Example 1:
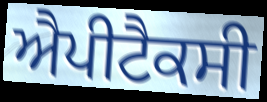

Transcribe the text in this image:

ਐਪੀਟੈਕਸੀ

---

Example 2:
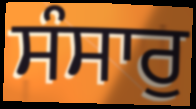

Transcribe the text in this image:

ਸੰਸਾਰੁ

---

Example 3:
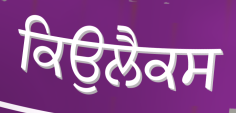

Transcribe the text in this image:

ਕਿਉਲੈਕਸ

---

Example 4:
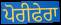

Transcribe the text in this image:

ਪੋਰੀਫੇਰਾ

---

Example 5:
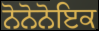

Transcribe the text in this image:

ਨੋਨੋਨੋਇਕ